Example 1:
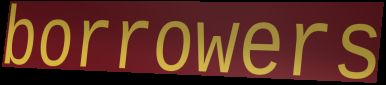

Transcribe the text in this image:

borrowers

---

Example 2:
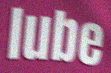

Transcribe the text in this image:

lube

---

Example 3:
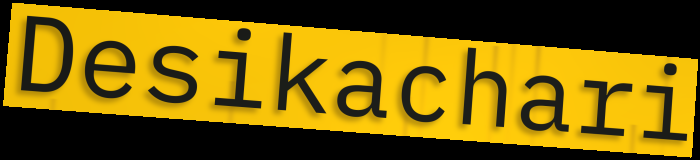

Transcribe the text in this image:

Desikachari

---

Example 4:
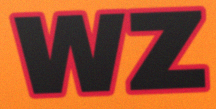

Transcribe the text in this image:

WZ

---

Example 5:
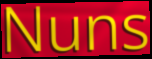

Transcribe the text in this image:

Nuns